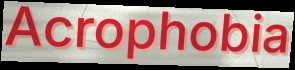
Acrophobia